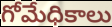
గోమేధికాలు